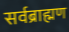
सर्वब्राह्मण